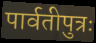
पार्वतीपुत्रः